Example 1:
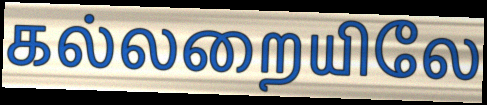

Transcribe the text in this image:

கல்லறையிலே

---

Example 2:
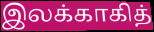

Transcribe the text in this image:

இலக்காகித்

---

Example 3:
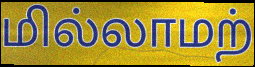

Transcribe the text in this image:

மில்லாமற்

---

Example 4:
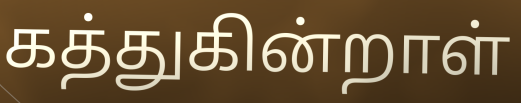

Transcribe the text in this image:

கத்துகின்றாள்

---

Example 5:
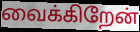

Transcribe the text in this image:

வைக்கிறேன்